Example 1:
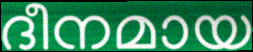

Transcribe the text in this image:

ദീനമായ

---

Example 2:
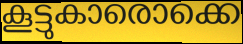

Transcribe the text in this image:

കൂട്ടുകാരൊക്കെ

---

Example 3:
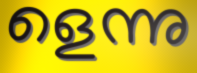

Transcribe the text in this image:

ളെന്നു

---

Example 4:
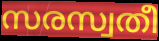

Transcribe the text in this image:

സരസ്വതീ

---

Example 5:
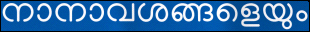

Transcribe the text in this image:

നാനാവശങ്ങളെയും